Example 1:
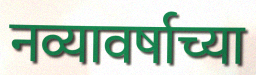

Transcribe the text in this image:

नव्यावर्षाच्या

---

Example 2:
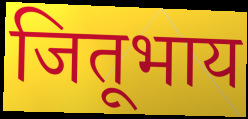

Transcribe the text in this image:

जितूभाय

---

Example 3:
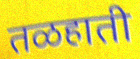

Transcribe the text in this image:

तळहाती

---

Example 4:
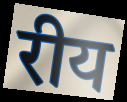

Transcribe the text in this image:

रीय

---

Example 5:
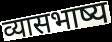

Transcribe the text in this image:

व्यासभाष्य